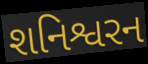
શનિશ્વરન